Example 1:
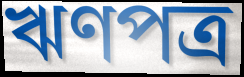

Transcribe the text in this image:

ঋণপত্র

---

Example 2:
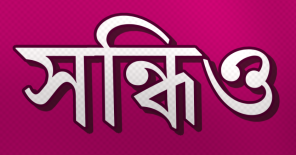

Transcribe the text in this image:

সন্ধিও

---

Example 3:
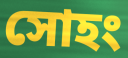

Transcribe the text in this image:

সোহং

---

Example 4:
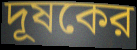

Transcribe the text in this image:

দূষকের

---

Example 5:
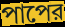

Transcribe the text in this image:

পাপের